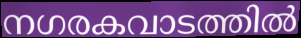
നഗരകവാടത്തിൽ